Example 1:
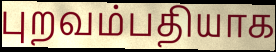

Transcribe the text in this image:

புறவம்பதியாக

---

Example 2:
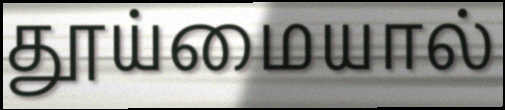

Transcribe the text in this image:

தூய்மையால்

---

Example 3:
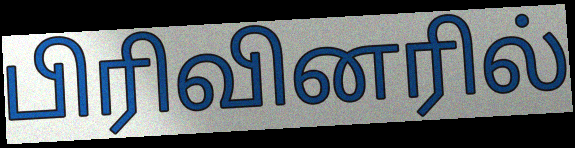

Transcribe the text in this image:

பிரிவினரில்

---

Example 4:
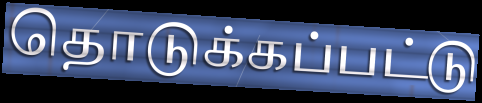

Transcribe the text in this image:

தொடுக்கப்பட்டு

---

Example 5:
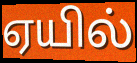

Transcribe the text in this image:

ஏயில்